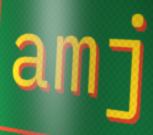
amj